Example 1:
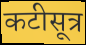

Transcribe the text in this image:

कटीसूत्र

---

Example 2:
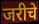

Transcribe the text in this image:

जरीचे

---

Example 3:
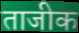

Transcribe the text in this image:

ताजीक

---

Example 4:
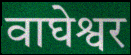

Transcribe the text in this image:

वाघेश्वर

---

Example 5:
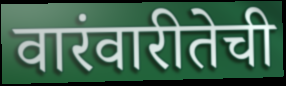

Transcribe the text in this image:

वारंवारीतेची